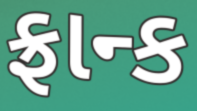
ફ્રાન્ક